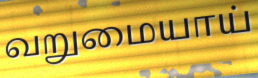
வறுமையாய்